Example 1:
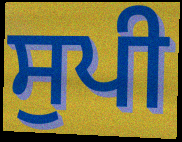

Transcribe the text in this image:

ਸੁਪੀ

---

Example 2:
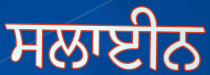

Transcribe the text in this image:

ਸਲਾਈਨ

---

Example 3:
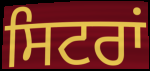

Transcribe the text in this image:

ਸਿਟਰਾਂ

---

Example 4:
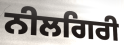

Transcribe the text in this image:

ਨੀਲਗਿਰੀ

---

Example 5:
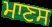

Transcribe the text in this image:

ਮਾਣਸ